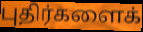
புதிர்களைக்